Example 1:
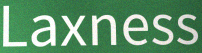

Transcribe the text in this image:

Laxness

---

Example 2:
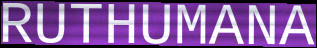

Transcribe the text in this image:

RUTHUMANA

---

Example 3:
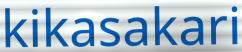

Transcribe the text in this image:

kikasakari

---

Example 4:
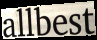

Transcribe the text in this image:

allbest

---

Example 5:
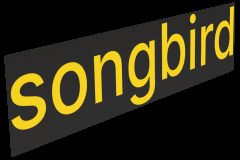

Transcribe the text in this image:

songbird